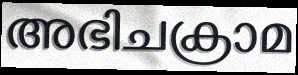
അഭിചക്രാമ